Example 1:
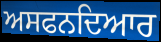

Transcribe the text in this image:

ਅਸਫਨਦਿਆਰ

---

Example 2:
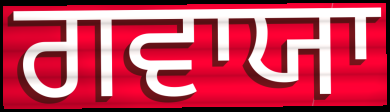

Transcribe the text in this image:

ਗਵਾਯਾ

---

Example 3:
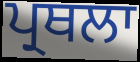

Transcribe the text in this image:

ਪ੍ਰਥਲਾ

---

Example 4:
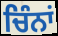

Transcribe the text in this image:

ਚਿੰਨਾਂ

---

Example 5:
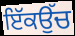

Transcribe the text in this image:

ਇੱਕਉੱਚ